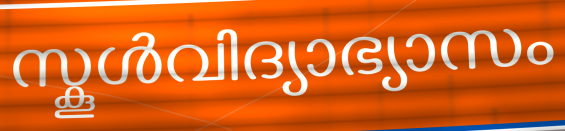
സ്കൂൾവിദ്യാഭ്യാസം